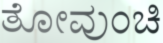
ತೋವುಂಚಿ